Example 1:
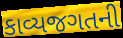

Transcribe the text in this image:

કાવ્યજગતની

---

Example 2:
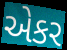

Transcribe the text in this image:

એકર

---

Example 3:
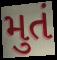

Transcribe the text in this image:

મુતં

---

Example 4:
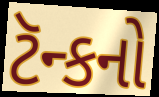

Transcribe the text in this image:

ટૅન્કનો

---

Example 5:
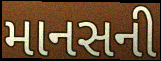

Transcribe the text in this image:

માનસની